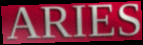
ARIES